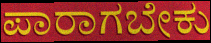
ಪಾರಾಗಬೇಕು